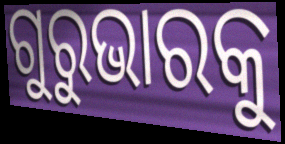
ଗୁରୁଭାରକୁ